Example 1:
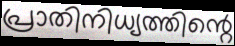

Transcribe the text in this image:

പ്രാതിനിധ്യത്തിന്റെ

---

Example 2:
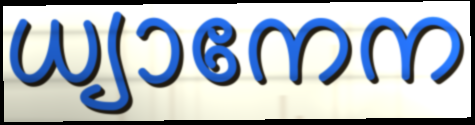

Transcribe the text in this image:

ധ്യാനേന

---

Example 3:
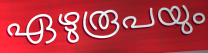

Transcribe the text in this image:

ഏഴുരൂപയും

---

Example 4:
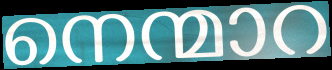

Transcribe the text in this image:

നെന്മാറ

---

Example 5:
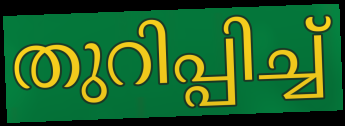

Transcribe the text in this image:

തുറിപ്പിച്ച്